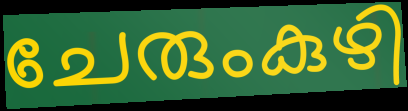
ചേരുംകുഴി